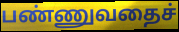
பண்ணுவதைச்